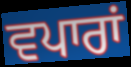
ਵਪਾਰਾਂ